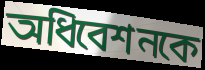
অধিবেশনকে